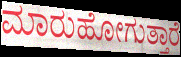
ಮಾರುಹೋಗುತ್ತಾರೆ